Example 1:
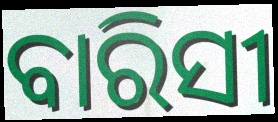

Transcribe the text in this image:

ବାରିସୀ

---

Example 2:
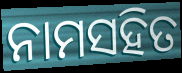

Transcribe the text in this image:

ନାମସହିତ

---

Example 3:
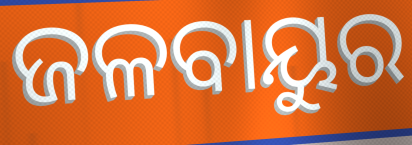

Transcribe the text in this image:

ଜଳବାୟୁର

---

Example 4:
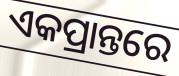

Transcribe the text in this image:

ଏକପ୍ରାନ୍ତରେ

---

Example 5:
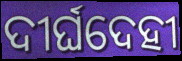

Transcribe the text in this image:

ଦୀର୍ଘଦେହୀ